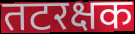
तटरक्षक